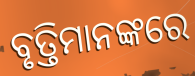
ବୃତ୍ତିମାନଙ୍କରେ